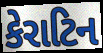
કેરાટિન